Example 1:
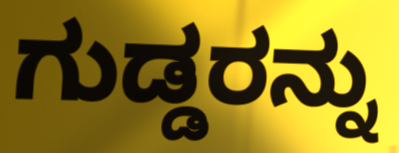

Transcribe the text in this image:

ಗುಡ್ಡರನ್ನು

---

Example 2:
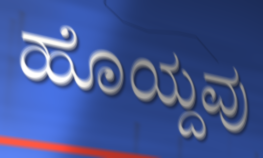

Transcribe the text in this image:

ಹೊಯ್ದವು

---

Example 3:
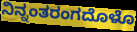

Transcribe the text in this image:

ನಿನ್ನಂತರಂಗದೊಳೊ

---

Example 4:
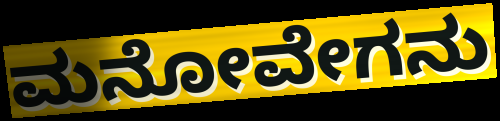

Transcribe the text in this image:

ಮನೋವೇಗನು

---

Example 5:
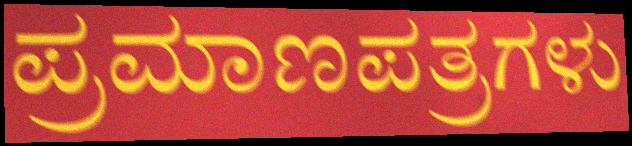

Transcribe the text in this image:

ಪ್ರಮಾಣಪತ್ರಗಳು